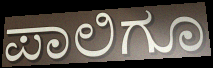
ಪಾಲಿಗೂ